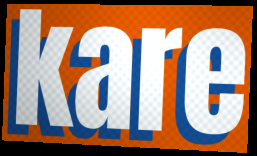
kare